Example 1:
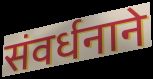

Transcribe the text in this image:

संवर्धनाने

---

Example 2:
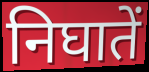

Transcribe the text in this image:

निघातें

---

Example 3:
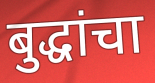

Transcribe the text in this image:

बुद्धांचा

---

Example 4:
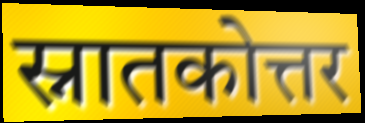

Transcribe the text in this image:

स्नातकोत्तर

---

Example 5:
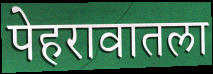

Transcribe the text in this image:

पेहरावातला